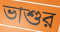
ভাশুর